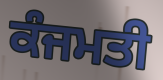
ਕੰਜਮਤੀ